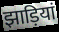
झाड़ियां